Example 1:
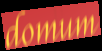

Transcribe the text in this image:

domum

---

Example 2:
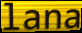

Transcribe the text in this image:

lana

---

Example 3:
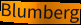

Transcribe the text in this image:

Blumberg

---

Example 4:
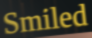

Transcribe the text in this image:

Smiled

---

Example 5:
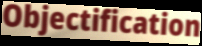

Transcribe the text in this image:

Objectification